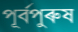
পূৰ্বপুৰুষ